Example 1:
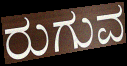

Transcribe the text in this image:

ರುಗುವ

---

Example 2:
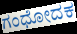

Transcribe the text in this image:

ಗಂಧೋದಕ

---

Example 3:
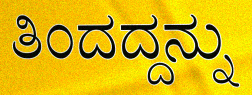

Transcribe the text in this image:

ತಿಂದದ್ದನ್ನು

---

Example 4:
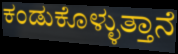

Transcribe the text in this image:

ಕಂಡುಕೊಳ್ಳುತ್ತಾನೆ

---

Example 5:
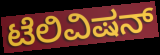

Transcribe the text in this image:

ಟೆಲಿವಿಷನ್